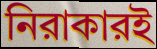
নিরাকারই